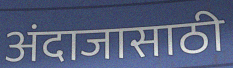
अंदाजासाठी